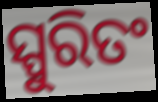
ସ୍ପୁରିତଂ